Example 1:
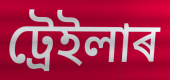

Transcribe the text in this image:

ট্ৰেইলাৰ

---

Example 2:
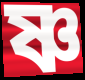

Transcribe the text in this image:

ষ্ণ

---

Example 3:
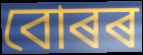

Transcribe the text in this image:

বোৰৰ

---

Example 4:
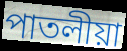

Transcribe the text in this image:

পাতলীয়া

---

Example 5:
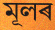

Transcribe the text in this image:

মূলৰ